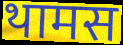
थामस